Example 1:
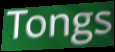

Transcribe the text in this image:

Tongs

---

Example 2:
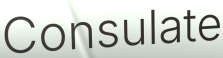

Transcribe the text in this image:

Consulate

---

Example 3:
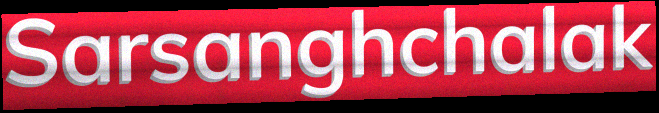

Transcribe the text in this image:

Sarsanghchalak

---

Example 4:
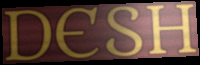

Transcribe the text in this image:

DESH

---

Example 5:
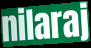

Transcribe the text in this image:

nilaraj